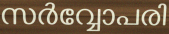
സർവ്വോപരി